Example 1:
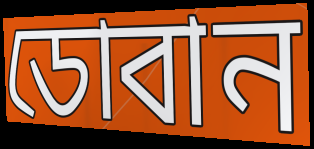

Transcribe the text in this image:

ডোবান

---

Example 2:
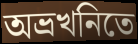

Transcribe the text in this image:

অভ্রখনিতে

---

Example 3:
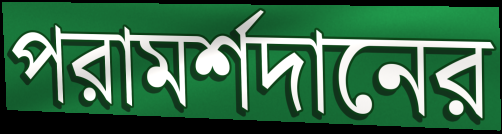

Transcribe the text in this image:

পরামর্শদানের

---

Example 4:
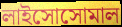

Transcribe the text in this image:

লাইসোসোমাল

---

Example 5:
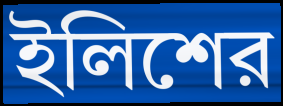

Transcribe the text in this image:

ইলিশের